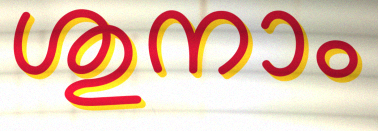
ശുനാം